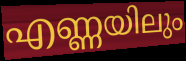
എണ്ണയിലും